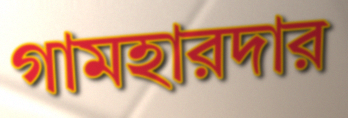
গামহারদার